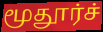
மூதூர்ச்